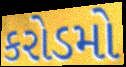
કરોડમો